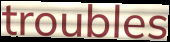
troubles